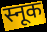
स्नूक